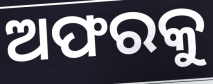
ଅଫରକୁ